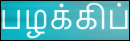
பழக்கிப்